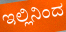
ಇಲ್ಲಿನಿಂದ